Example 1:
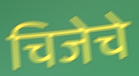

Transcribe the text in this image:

चिजेचे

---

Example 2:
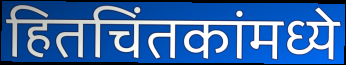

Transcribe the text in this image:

हितचिंतकांमध्ये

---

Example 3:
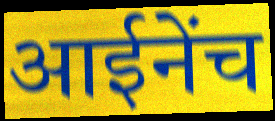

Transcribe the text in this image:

आईनेंच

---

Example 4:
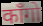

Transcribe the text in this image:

काँगो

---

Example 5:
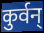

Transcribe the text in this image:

कुर्वन्